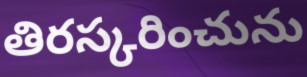
తిరస్కరించును